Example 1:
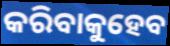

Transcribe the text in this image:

କରିବାକୁହେବ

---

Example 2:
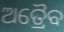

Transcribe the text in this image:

ଅତ୍ରୈବ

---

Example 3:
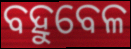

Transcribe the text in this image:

ବହୁବେଳ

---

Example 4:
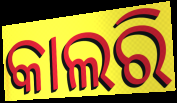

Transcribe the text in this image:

କାଲରି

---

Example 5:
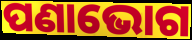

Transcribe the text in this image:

ପଣାଭୋଗ